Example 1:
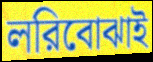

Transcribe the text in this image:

লরিবোঝাই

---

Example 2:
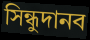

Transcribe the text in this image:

সিন্ধুদানব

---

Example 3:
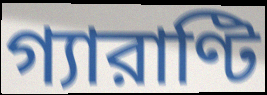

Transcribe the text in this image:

গ্যারাণ্টি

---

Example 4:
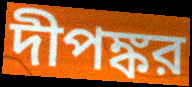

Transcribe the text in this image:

দীপঙ্কর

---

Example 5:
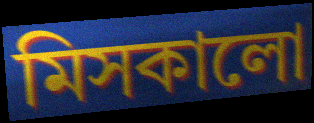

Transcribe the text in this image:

মিসকালো